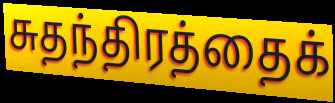
சுதந்திரத்தைக்